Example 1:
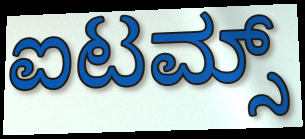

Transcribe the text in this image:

ಐಟಮ್ಸ್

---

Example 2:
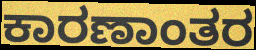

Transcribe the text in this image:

ಕಾರಣಾಂತರ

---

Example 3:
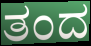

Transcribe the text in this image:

ತಂದ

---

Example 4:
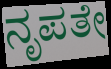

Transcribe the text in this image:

ನೃಪತೇ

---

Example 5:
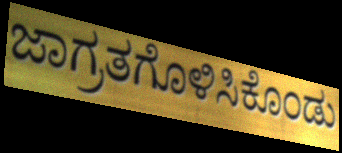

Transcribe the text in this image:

ಜಾಗ್ರತಗೊಳಿಸಿಕೊಂಡು